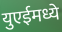
युएईमध्ये